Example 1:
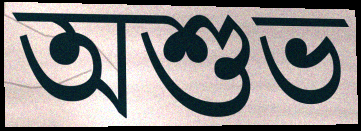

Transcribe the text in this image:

অশুভ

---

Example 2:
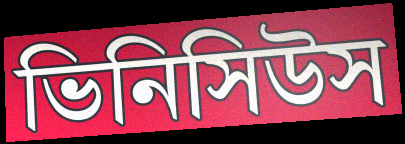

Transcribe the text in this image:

ভিনিসিউস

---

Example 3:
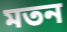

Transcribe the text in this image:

মতন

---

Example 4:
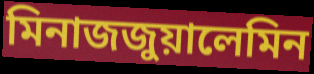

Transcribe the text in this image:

মিনাজজুয়ালেমিন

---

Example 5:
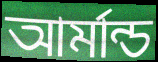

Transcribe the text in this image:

আর্মান্ড